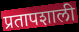
प्रतापशाली